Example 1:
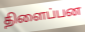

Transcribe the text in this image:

திளைப்பன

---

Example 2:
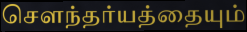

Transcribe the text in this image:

சௌந்தர்யத்தையும்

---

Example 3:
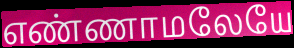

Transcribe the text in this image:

எண்ணாமலேயே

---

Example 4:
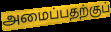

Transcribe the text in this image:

அமைப்பதற்குப்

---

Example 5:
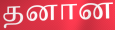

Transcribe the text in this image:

தனான